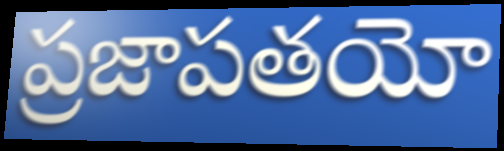
ప్రజాపతయో